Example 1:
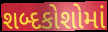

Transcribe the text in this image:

શબ્દકોશોમાં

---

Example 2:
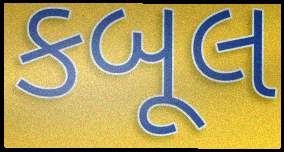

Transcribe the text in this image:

કબૂલ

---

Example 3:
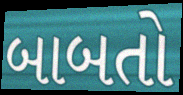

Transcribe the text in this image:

બાબતો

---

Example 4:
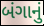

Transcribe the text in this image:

બંગાનું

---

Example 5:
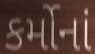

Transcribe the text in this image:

કર્મોનાં